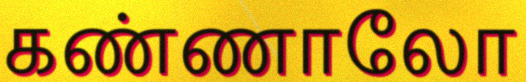
கண்ணாலோ